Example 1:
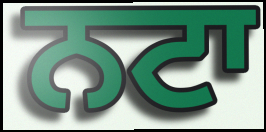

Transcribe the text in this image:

ਨਟਾ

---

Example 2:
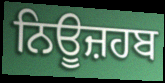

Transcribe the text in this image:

ਨਿਊਜ਼ਹਬ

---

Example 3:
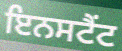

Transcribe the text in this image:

ਇਨਸਟੈਂਟ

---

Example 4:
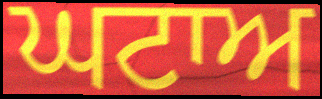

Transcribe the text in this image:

ਘਟਾਅ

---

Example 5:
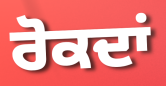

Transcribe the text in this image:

ਰੋਕਦਾਂ